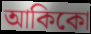
আকিকো